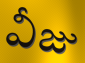
వీజు